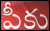
పీకు